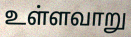
உள்ளவாறு